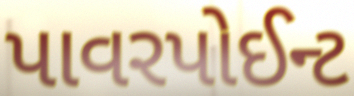
પાવરપોઈન્ટ